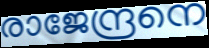
രാജേന്ദ്രനെ